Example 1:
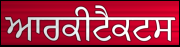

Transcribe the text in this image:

ਆਰਕੀਟੈਕਟਸ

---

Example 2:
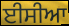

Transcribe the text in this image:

ਈਸੀਆ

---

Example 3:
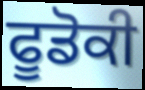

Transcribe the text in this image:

ਫੂਡੋਕੀ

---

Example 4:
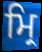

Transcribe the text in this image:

ਮ੍ਰਿ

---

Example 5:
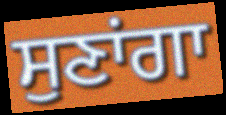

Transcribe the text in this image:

ਸੁਣਾਂਗਾ